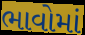
ભાવોમાં